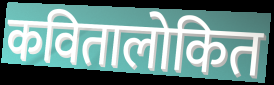
कवितालोकित